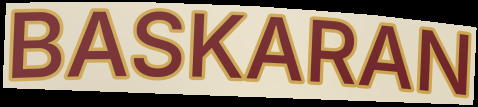
BASKARAN